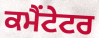
ਕਮੈਂਟੇਟਰ